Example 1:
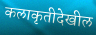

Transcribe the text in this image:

कलाकृतीदेखील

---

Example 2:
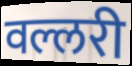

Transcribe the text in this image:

वल्लरी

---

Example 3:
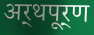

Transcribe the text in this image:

अर्थपूर्ण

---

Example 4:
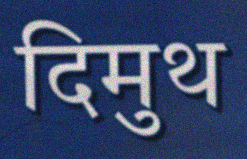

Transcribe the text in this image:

दिमुथ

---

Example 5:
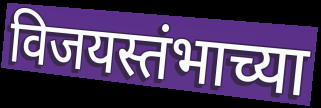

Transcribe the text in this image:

विजयस्तंभाच्या